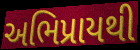
અભિપ્રાયથી